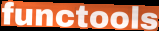
functools